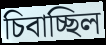
চিবাচ্ছিল